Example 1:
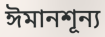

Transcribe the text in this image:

ঈমানশূন্য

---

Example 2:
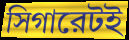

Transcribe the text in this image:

সিগারেটই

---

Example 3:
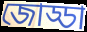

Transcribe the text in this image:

জোড্ডা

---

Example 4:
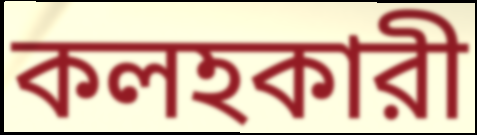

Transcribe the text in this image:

কলহকারী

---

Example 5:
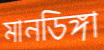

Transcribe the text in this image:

মানডিঙ্গা